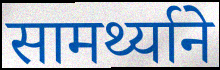
सामर्थ्याने